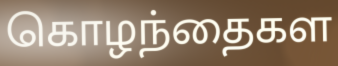
கொழந்தைகள